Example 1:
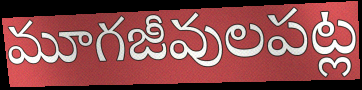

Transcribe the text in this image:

మూగజీవులపట్ల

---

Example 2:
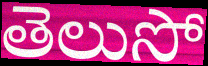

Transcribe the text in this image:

తెలుసో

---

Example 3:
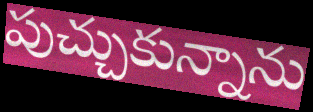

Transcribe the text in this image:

పుచ్చుకున్నాను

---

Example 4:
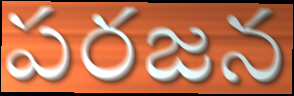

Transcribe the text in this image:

పరజన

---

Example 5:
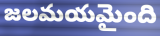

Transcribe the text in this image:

జలమయమైంది